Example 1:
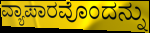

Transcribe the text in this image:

ವ್ಯಾಪಾರವೊಂದನ್ನು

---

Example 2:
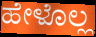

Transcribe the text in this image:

ಹೇಳೊಲ್ಲ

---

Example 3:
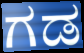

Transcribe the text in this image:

ಗಡ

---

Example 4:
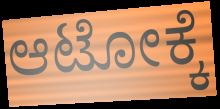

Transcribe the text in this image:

ಆಟೋಕ್ಕೆ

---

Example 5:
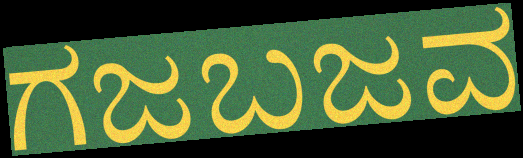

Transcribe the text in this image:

ಗಜಬಜವ